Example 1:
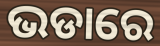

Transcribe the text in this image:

ଭଡାରେ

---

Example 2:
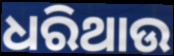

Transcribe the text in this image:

ଧରିଥାଉ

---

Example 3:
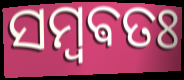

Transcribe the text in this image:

ସମ୍ବଵତଃ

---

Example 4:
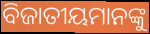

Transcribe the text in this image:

ବିଜାତୀୟମାନଙ୍କୁ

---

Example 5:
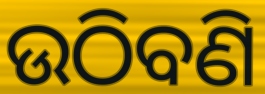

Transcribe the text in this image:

ଉଠିବଣି